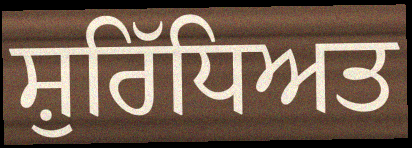
ਸ਼ੁਰਿੱਧਿਅਤ